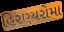
હિરણ્યરોમા